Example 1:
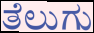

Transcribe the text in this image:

ತೆಲುಗು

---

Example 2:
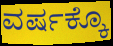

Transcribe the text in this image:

ವರ್ಷಕ್ಕೊ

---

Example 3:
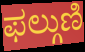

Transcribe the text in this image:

ಫಲ್ಗುಣಿ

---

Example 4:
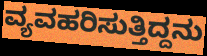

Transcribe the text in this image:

ವ್ಯವಹರಿಸುತ್ತಿದ್ದನು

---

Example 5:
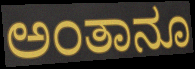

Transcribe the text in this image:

ಅಂತಾನೂ